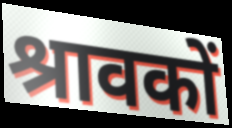
श्रावकों